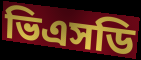
ভিএসডি